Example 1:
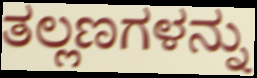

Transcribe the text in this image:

ತಲ್ಲಣಗಳನ್ನು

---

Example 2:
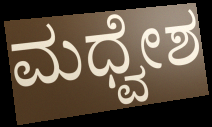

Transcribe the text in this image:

ಮಧ್ವೇಶ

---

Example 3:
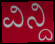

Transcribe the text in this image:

ವಿನ್ದಿ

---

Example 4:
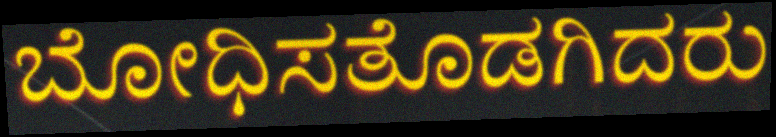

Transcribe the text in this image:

ಬೋಧಿಸತೊಡಗಿದರು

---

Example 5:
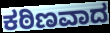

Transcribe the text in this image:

ಕಠಿಣವಾದ